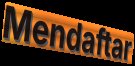
Mendaftar